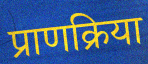
प्राणक्रिया